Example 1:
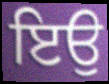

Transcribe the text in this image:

ਇਉ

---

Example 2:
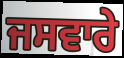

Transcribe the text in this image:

ਜਸਵਾਰੇ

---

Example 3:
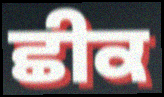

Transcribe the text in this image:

ਛੀਕ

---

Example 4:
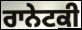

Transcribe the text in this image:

ਰਾਨੇਟਕੀ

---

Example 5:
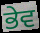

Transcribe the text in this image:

ਭੇਵ